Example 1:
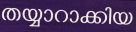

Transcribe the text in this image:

തയ്യാറാക്കിയ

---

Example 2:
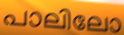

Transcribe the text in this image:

പാലിലോ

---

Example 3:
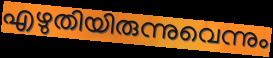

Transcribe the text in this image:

എഴുതിയിരുന്നുവെന്നും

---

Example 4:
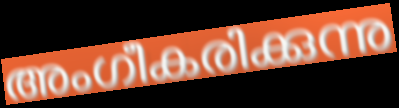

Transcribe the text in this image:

അംഗീകരിക്കുന്നു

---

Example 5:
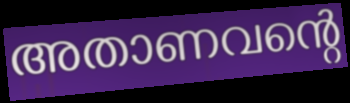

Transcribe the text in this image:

അതാണവന്റെ